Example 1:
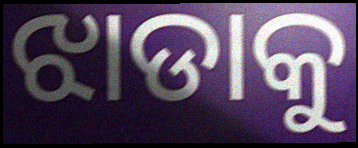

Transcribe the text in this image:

ଝାଡାକୁ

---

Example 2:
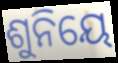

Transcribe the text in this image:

ଶୁନିୟେ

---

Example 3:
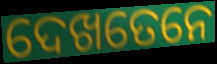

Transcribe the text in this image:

ଦେଖତେନେ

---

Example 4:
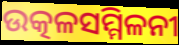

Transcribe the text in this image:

ଉତ୍କଳସମ୍ମିଳନୀ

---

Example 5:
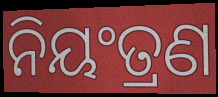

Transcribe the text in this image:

ନିୟଂତ୍ରଣ